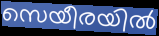
സെയീരയിൽ